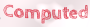
Computed